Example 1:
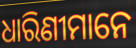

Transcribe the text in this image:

ଧାରିଣୀମାନେ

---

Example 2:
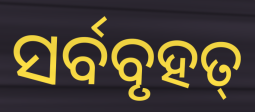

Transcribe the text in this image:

ସର୍ବବୃହତ୍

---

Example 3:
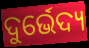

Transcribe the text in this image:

ଦୁର୍ଭେଦ୍ୟ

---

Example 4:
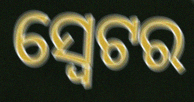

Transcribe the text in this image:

ସ୍ଵେଟର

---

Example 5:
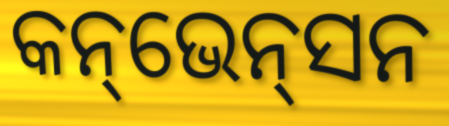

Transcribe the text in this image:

କନ୍‌ଭେନ୍‌ସନ